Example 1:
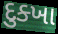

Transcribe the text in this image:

દુક્ખા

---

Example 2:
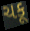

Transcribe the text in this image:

ચકૂ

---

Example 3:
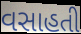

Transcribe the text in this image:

વસાહતી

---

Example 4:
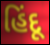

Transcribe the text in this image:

હિંદૂ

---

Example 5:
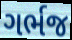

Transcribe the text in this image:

ગર્ભજ